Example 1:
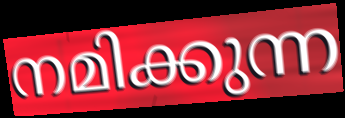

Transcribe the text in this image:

നമിക്കുന്ന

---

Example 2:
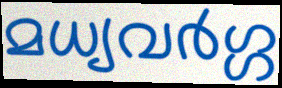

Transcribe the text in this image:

മധ്യവർഗ്ഗ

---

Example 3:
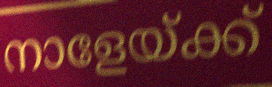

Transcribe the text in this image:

നാളേയ്ക്ക്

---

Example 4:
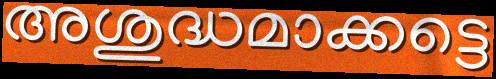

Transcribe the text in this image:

അശുദ്ധമാക്കട്ടെ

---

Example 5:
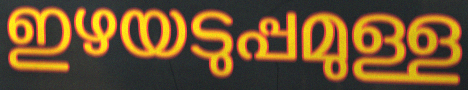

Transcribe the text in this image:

ഇഴയടുപ്പമുള്ള